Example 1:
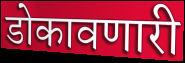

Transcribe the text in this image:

डोकावणारी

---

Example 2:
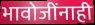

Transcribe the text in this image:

भावोजींनाही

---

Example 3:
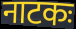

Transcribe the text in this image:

नाटकः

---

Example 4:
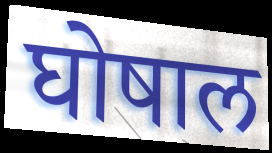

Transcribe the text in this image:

घोषाल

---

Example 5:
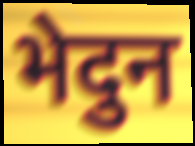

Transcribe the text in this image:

भेदुन